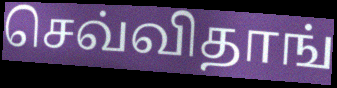
செவ்விதாங்